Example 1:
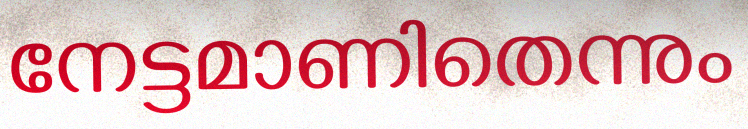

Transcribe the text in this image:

നേട്ടമാണിതെന്നും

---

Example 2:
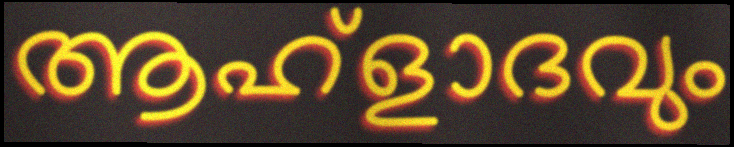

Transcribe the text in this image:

ആഹ്ളാദവും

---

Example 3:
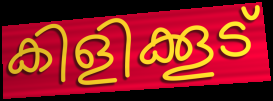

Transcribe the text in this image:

കിളിക്കൂട്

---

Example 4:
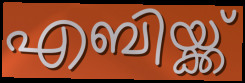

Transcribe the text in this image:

എബിയ്ക്ക്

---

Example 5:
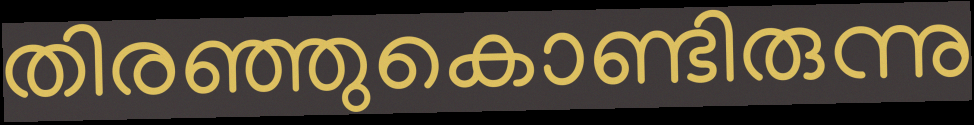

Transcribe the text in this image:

തിരഞ്ഞുകൊണ്ടിരുന്നു